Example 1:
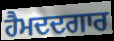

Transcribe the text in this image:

ਹੈਮਦਦਗਾਰ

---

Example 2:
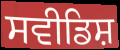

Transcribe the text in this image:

ਸਵੀਡਿਸ਼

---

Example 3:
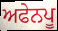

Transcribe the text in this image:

ਅਫੇਨਪੂ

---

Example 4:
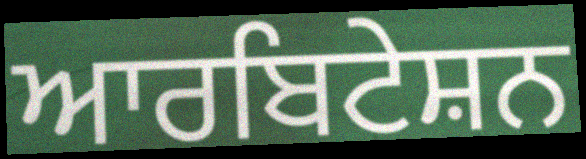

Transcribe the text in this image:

ਆਰਬਿਟੇਸ਼ਨ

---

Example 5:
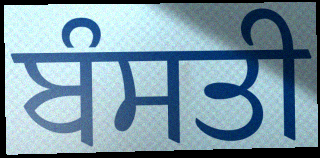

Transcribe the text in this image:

ਬੰਸਤੀ